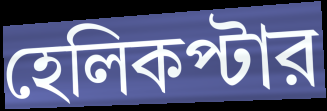
হেলিকপ্টার